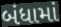
બંધામાં